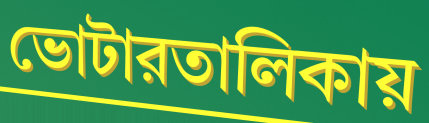
ভোটারতালিকায়